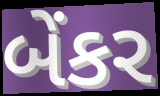
બેંકર